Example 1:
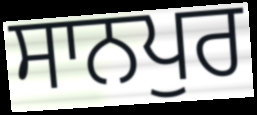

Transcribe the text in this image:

ਸਾਨਪੁਰ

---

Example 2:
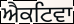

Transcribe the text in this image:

ਐਕਟਿਵਾ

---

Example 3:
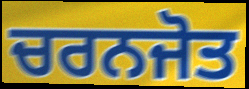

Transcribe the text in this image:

ਚਰਨਜੋਤ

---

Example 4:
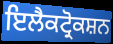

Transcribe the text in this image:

ਇਲੈਕਟ੍ਰੋਕਸ਼ਨ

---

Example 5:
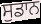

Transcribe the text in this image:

ਸੁਡਾਨ